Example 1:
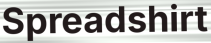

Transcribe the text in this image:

Spreadshirt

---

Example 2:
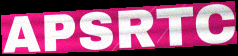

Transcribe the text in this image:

APSRTC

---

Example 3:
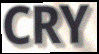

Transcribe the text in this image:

CRY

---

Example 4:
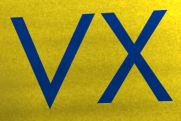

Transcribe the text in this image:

VX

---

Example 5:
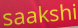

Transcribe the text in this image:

saakshi